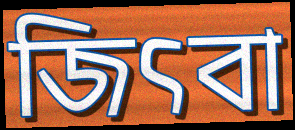
জিৎবা